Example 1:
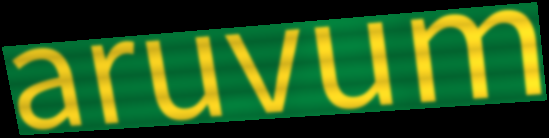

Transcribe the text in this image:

aruvum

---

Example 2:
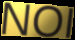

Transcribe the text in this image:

NOI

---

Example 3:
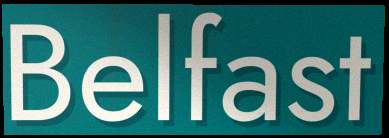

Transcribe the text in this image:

Belfast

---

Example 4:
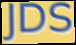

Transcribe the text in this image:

JDS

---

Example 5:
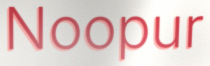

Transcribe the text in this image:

Noopur